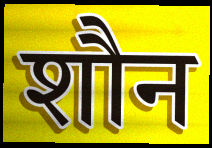
शौन